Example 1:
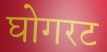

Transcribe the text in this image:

घोगरट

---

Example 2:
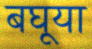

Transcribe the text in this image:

बघूया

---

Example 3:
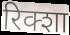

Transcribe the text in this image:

रिक्शा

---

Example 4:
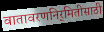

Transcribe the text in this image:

वातावरणनिर्मितीसाठी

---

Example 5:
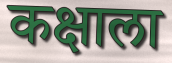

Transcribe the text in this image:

कक्षाला